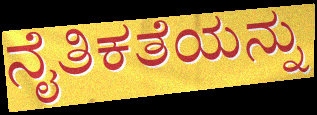
ನೈತಿಕತೆಯನ್ನು